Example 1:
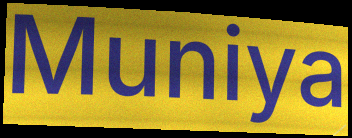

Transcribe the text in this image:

Muniya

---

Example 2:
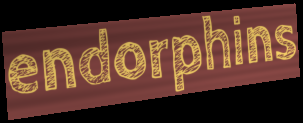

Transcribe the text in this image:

endorphins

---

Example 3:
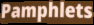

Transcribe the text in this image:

Pamphlets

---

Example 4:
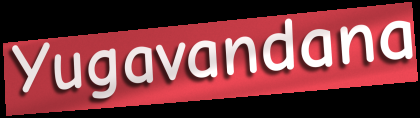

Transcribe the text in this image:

Yugavandana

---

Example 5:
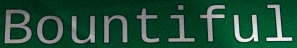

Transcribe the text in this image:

Bountiful